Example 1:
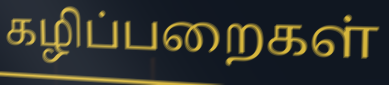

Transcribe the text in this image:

கழிப்பறைகள்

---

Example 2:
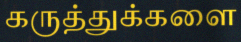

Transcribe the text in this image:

கருத்துக்களை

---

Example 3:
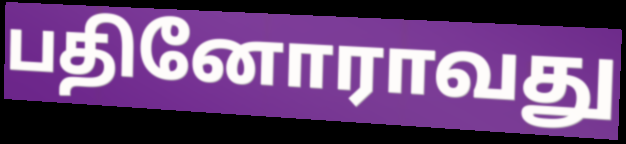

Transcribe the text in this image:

பதினோராவது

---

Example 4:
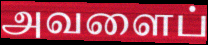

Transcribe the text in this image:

அவளைப்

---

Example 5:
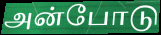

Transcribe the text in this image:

அன்போடு